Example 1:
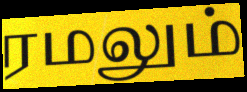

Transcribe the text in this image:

ரமலும்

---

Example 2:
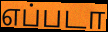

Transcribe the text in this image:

எப்படா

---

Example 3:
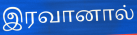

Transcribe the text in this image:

இரவானால்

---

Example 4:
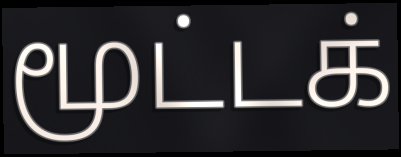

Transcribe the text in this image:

மூட்டக்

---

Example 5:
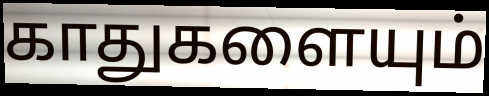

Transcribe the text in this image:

காதுகளையும்